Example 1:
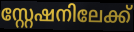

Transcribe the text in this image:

സ്റ്റേഷനിലേക്ക്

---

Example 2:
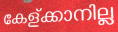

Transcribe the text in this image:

കേള്ക്കാനില്ല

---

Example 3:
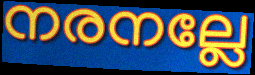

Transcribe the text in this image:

നരനല്ലേ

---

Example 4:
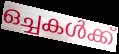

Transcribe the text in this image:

ഒച്ചകൾക്ക്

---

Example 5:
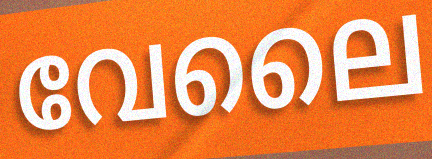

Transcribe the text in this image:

വേലൈ